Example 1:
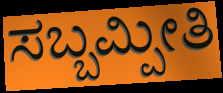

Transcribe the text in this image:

ಸಬ್ಬಮ್ಪೀತಿ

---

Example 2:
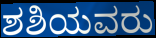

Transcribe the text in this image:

ಶಶಿಯವರು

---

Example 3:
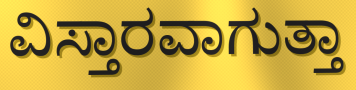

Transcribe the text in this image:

ವಿಸ್ತಾರವಾಗುತ್ತಾ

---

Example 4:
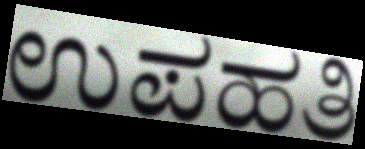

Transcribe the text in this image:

ಉಪಹತಿ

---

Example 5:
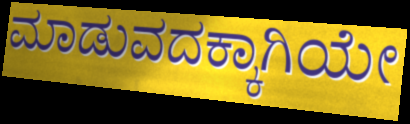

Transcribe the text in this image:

ಮಾಡುವದಕ್ಕಾಗಿಯೇ